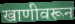
खाणीवरून